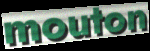
mouton